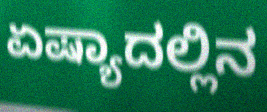
ಏಷ್ಯಾದಲ್ಲಿನ